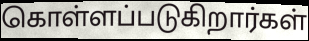
கொள்ளப்படுகிறார்கள்